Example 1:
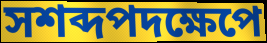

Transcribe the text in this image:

সশব্দপদক্ষেপে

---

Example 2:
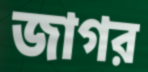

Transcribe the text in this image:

জাগর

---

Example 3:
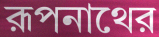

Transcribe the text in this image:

রূপনাথের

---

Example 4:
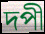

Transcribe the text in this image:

দপী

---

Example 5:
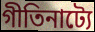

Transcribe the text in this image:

গীতিনাট্যে